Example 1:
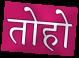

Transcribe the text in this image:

तोहो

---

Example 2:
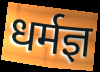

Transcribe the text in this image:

धर्मज्ञ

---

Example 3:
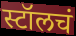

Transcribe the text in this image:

स्टॉलचं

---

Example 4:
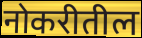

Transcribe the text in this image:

नोकरीतील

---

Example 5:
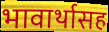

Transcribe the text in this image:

भावार्थासह